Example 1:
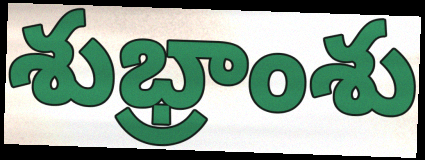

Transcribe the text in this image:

శుభ్రాంశు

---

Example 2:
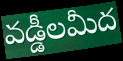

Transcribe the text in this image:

వడ్డీలమీద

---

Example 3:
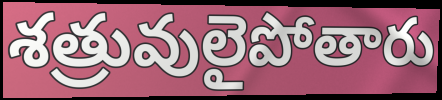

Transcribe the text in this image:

శత్రువులైపోతారు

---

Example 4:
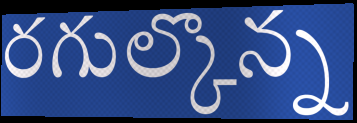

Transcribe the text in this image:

రగుల్కొన్న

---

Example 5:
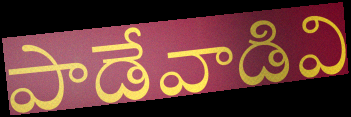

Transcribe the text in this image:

పాడేవాడివి